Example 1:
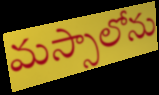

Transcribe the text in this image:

మస్సాలోను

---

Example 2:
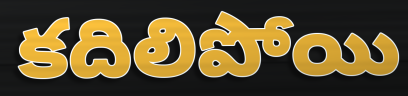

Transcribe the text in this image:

కదిలిపోయి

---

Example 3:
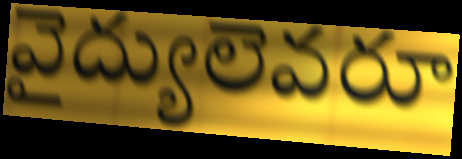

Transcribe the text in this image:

వైద్యులెవరూ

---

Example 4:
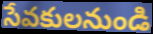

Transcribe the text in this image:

సేవకులనుండి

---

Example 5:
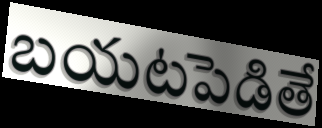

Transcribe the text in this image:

బయటపెడితే